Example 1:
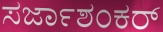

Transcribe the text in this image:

ಸರ್ಜಾಶಂಕರ್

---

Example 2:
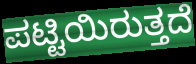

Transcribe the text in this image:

ಪಟ್ಟಿಯಿರುತ್ತದೆ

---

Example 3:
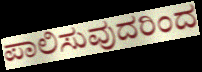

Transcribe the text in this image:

ಪಾಲಿಸುವುದರಿಂದ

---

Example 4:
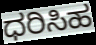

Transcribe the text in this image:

ಧರಿಸಿಹ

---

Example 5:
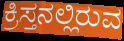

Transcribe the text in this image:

ಕ್ರಿಸ್ತನಲ್ಲಿರುವ